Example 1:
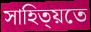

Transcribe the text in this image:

সাহিত্য়তে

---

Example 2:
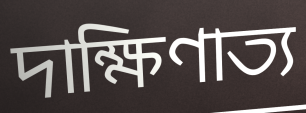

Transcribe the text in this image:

দাক্ষিণাত্য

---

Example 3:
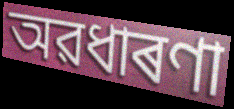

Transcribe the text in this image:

অৱধাৰণা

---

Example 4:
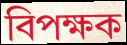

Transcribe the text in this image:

বিপক্ষক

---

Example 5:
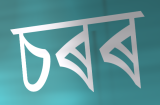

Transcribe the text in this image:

চৰৰ